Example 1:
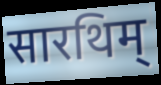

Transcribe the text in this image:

सारथिम्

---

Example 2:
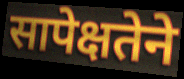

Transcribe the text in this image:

सापेक्षतेने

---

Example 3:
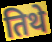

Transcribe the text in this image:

तिथे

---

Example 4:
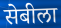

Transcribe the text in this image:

सेबीला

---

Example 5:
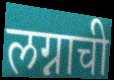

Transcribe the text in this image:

लग्नाची